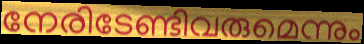
നേരിടേണ്ടിവരുമെന്നും